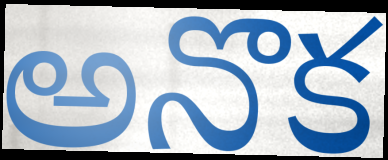
అనొక